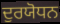
ਦੁਰਯੋਧਨ